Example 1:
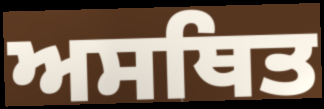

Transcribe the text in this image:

ਅਸਥਿਤ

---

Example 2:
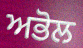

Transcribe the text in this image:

ਅਭੋਲ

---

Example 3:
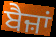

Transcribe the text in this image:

ਬੈਜ਼ਾਂ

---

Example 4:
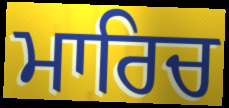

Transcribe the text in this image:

ਮਾਰਿਚ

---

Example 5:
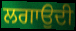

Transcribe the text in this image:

ਲਗਾਉਦੀ